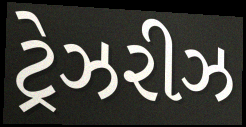
ટ્રેઝરીઝ